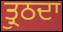
ਤ੍ਰੁਠਦਾ